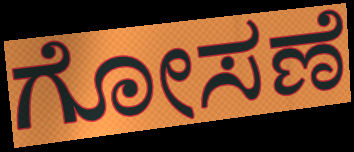
ಗೋಸಣೆ